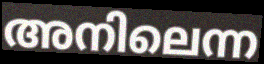
അനിലെന്ന